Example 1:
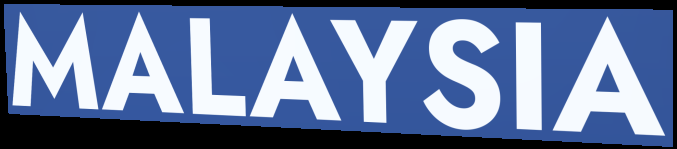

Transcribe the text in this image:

MALAYSIA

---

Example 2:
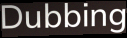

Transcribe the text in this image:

Dubbing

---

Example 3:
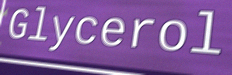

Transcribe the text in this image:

Glycerol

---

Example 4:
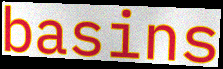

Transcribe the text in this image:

basins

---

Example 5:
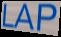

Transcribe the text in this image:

LAP